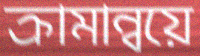
ক্রামান্বয়ে